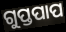
ଗୁପ୍ତପାପ